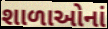
શાળાઓનાં